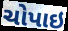
ચોપાઇ